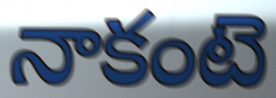
నాకంటె